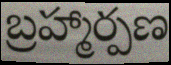
బ్రహ్మార్పణ